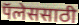
पॅलेससाठी